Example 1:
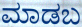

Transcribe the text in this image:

ಮಾಡಬ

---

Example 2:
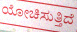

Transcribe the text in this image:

ಯೋಚಿಸುತ್ತಿದೆ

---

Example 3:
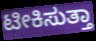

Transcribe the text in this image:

ಟೀಕಿಸುತ್ತಾ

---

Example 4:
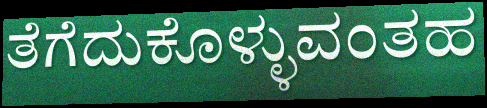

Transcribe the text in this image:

ತೆಗೆದುಕೊಳ್ಳುವಂತಹ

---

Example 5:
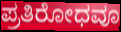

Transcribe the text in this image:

ಪ್ರತಿರೋಧವೂ